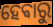
ହେଵାରୁ